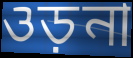
ওড়না